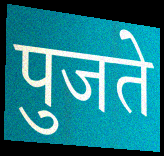
पुजते